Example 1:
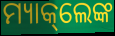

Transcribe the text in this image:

ମ୍ୟାକ୍‌ଲେଙ୍କ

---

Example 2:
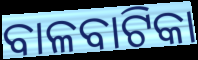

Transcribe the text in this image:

ବାଳବାଟିକା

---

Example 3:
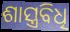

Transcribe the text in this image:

ଶାସ୍ତ୍ରବିଧି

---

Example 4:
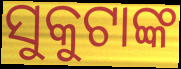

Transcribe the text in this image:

ସୁକୁଟାଙ୍କ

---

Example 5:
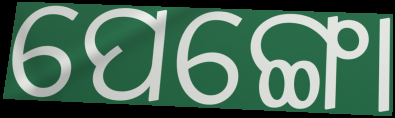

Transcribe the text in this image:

ପେଙ୍ଗୋ